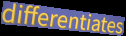
differentiates